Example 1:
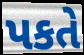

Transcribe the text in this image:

પકતે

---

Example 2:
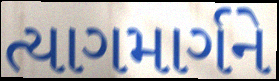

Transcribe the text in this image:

ત્યાગમાર્ગને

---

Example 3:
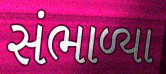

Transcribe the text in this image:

સંભાળ્યા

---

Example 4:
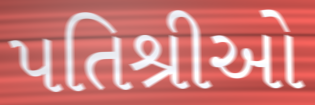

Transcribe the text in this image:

પતિશ્રીઓ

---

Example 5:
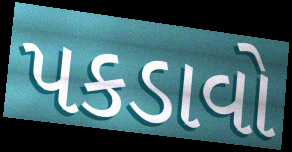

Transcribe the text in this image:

પકડાવો